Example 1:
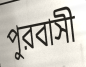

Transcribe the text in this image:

পুরবাসী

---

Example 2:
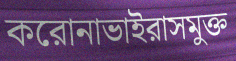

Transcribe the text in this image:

করোনাভাইরাসমুক্ত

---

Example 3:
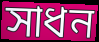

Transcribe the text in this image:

সাধন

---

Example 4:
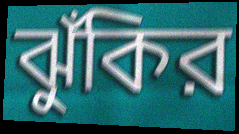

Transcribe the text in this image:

ঝুঁকির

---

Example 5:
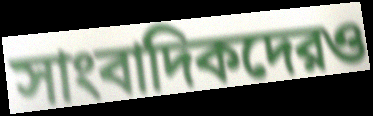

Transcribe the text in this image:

সাংবাদিকদেরও